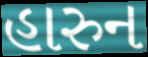
હારુન